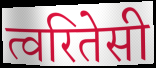
त्वरितेसी